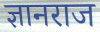
ज्ञानराज